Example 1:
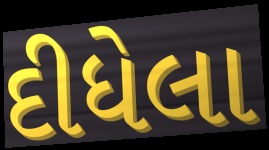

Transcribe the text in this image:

દીધેલા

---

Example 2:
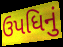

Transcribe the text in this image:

ઉપધિનું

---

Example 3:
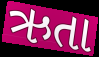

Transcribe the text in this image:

ઋતા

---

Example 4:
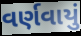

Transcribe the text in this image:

વર્ણવાયું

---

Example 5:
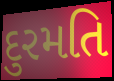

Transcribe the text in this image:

દુરમતિ